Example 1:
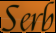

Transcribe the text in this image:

Serb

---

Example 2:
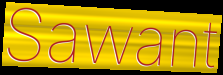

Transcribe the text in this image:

Sawant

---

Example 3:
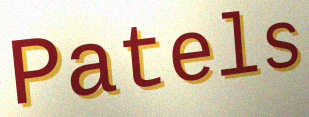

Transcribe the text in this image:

Patels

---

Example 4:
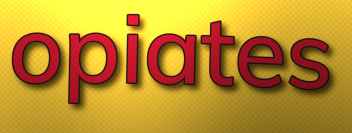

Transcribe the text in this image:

opiates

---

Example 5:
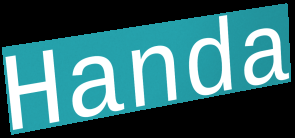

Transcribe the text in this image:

Handa